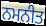
ਨਮਨੀਤ